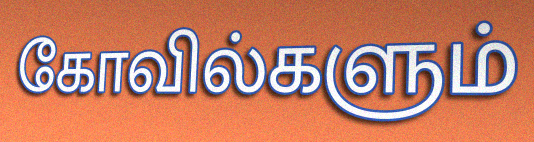
கோவில்களும்